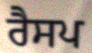
ਰੈਸਪ